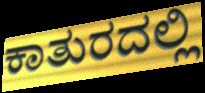
ಕಾತುರದಲ್ಲಿ